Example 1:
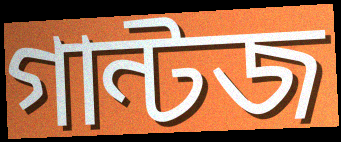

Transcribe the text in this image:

গান্টজ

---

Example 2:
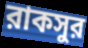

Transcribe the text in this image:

রাকসুর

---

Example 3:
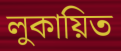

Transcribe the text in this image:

লুকায়িত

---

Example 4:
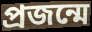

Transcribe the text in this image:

প্রজন্মে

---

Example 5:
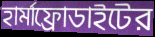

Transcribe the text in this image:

হার্মাফ্রোডাইটের